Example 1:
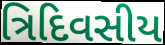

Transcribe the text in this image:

ત્રિદિવસીય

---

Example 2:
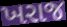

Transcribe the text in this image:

ખરાજ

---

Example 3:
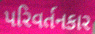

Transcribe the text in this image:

પરિવર્તનકાર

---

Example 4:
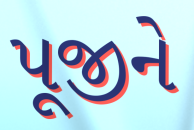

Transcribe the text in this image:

પૂજીને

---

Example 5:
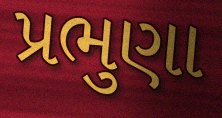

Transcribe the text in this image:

પ્રભુણા